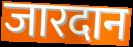
जारदान